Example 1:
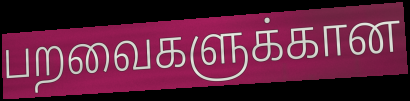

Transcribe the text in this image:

பறவைகளுக்கான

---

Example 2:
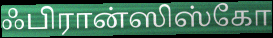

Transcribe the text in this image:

ஃபிரான்ஸிஸ்கோ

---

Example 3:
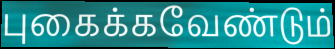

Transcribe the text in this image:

புகைக்கவேண்டும்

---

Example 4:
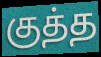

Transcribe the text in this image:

குத்த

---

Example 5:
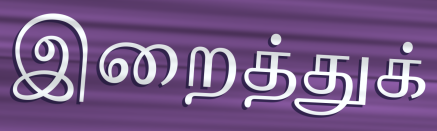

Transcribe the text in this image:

இறைத்துக்